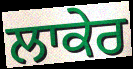
ਲਾਕੇਰ